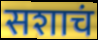
सशाचं